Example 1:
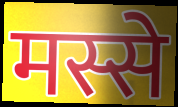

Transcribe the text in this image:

मस्से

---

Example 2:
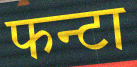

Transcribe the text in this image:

फन्टा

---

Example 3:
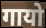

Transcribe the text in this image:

गायो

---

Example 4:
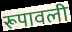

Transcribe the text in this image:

रूपावली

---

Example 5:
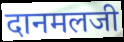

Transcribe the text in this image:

दानमलजी